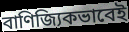
বাণিজ্যিকভাবেই